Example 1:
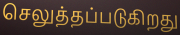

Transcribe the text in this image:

செலுத்தப்படுகிறது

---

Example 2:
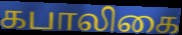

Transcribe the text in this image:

கபாலிகை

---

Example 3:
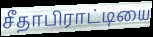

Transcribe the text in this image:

சீதாபிராட்டியை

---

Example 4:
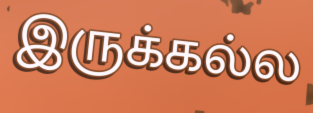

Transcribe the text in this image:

இருக்கல்ல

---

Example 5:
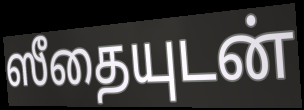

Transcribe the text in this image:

ஸீதையுடன்